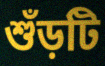
শুঁড়টি